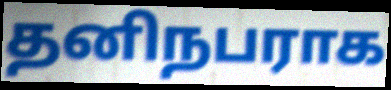
தனிநபராக